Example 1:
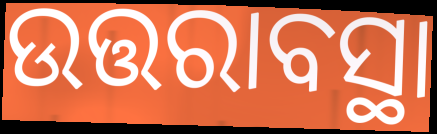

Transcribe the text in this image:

ଉତ୍ତରାବସ୍ଥା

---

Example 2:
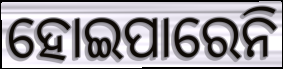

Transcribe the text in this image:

ହୋଇପାରେନି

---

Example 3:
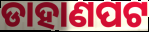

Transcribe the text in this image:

ଡାହାଣପଟ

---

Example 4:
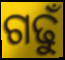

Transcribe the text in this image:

ଗଢୁଁ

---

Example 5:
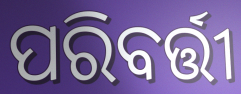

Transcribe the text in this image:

ପରିବର୍ତ୍ତୀ